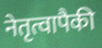
नेतृत्वापैकी